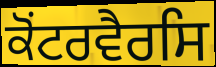
ਕੋਂਟਰਵੈਰਸਿ